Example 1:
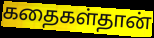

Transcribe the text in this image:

கதைகள்தான்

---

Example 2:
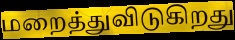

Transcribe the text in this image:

மறைத்துவிடுகிறது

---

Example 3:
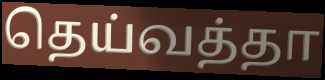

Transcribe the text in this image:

தெய்வத்தா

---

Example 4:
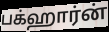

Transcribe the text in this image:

பக்ஹார்ன்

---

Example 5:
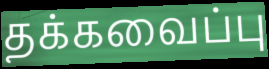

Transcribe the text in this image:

தக்கவைப்பு